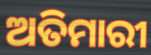
ଅତିମାରୀ